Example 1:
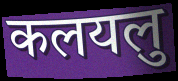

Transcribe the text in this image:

कलयलु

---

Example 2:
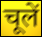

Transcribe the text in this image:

चूलें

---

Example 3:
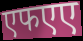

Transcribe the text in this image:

एफएए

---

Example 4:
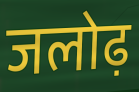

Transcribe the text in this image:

जलोढ़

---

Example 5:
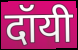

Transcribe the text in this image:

दॉयी